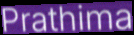
Prathima